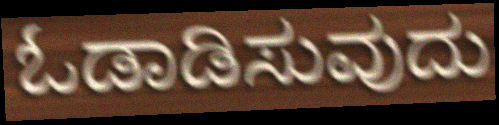
ಓಡಾಡಿಸುವುದು